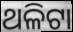
ଥଳିଟା